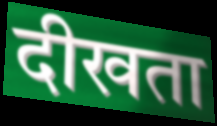
दीखता